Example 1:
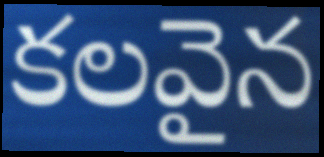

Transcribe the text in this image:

కలవైన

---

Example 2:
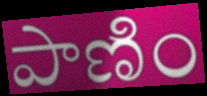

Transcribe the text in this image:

పాణిం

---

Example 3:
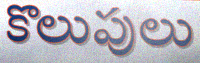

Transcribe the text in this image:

కొలుపులు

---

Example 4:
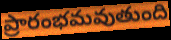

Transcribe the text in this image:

ప్రారంభమవుతుంది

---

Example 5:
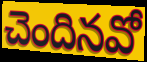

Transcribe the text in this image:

చెందినవో